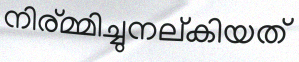
നിര്മ്മിച്ചുനല്കിയത്